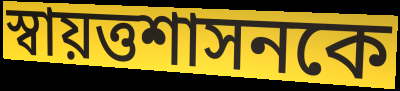
স্বায়ত্তশাসনকে